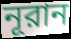
নূরান